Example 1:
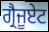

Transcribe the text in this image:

ਗ੍ਰੈਜੂਏਟ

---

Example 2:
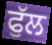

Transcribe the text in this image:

ਫੁੱਲ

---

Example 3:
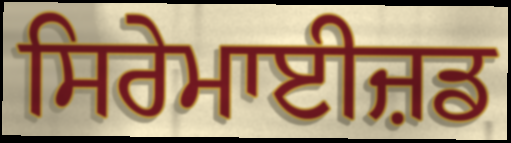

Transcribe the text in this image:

ਸਿਰੇਮਾਈਜ਼ਡ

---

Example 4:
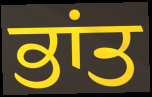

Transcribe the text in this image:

ਭਾਂਤ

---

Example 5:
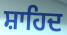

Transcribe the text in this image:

ਸ਼ਾਹਿਦ